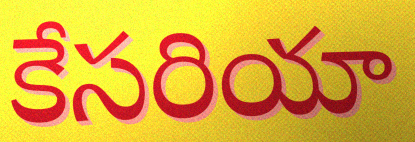
కేసరియా